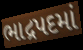
ભાદ્રપદમાં